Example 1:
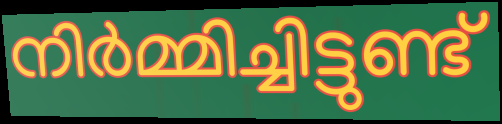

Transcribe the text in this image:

നിർമ്മിച്ചിട്ടുണ്ട്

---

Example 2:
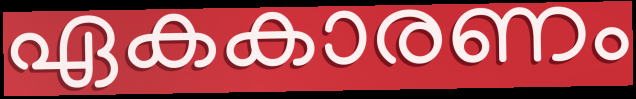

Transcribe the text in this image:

ഏകകാരണം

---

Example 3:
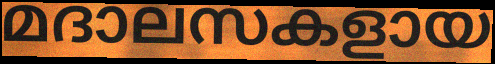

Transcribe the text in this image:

മദാലസകളായ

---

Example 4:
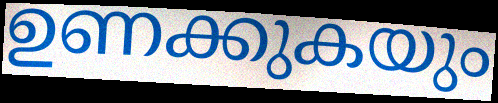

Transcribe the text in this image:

ഉണക്കുകയും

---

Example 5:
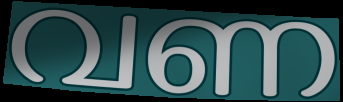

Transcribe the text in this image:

വണ